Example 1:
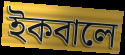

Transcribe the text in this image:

ইকবালে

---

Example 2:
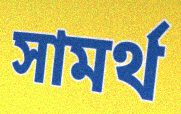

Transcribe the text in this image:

সামৰ্থ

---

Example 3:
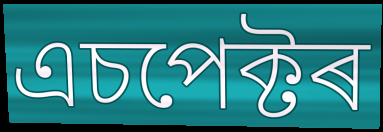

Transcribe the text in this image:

এচপেক্টৰ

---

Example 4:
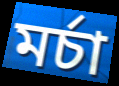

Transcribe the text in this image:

মৰ্চা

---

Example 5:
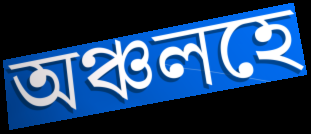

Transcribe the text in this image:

অঞ্চলহে